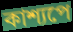
কাশ্যপে